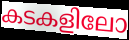
കടകളിലോ